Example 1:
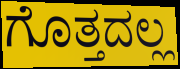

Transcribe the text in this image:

ಗೊತ್ತದಲ್ಲ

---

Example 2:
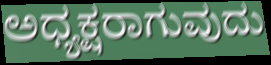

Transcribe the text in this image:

ಅಧ್ಯಕ್ಷರಾಗುವುದು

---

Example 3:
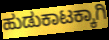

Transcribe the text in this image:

ಹುಡುಕಾಟಕ್ಕಾಗಿ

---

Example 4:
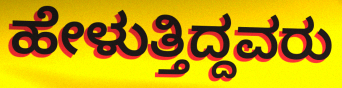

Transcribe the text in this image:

ಹೇಳುತ್ತಿದ್ದವರು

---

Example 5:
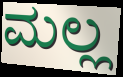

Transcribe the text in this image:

ಮಲ್ಲ